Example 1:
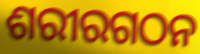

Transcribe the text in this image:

ଶରୀରଗଠନ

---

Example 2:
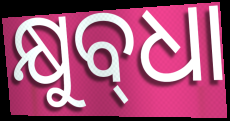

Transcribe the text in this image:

କ୍ଷୁବ୍‌ଧା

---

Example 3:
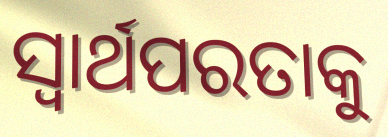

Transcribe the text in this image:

ସ୍ଵାର୍ଥପରତାକୁ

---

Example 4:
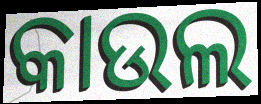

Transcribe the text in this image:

କାଉଲ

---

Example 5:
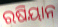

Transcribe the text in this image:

ରଷିୟାନ